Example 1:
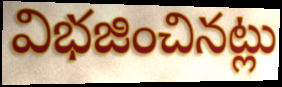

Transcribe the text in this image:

విభజించినట్లు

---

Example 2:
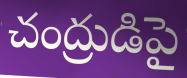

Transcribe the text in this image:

చంద్రుడిపై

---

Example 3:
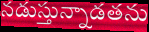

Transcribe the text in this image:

నడుస్తున్నాడతను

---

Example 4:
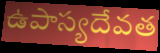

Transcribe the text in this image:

ఉపాస్యదేవత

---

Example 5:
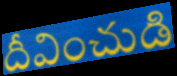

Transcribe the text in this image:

దీవించుడి